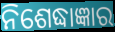
ନିଶେଦ୍ଧାଜ୍ଞାର